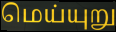
மெய்யுறு